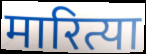
मारित्या